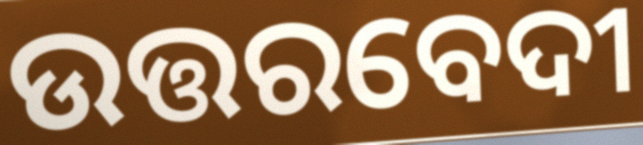
ଉତ୍ତରବେଦୀ